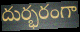
దుర్భరంగా